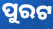
ପୁରଟ